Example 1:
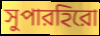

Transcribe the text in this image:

সুপারহিরো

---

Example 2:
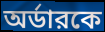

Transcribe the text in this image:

অর্ডারকে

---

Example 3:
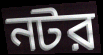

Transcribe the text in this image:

নটর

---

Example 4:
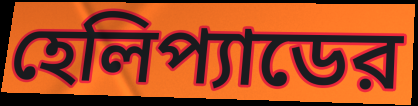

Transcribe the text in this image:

হেলিপ্যাডের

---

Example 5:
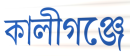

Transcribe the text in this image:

কালীগঞ্জে